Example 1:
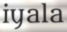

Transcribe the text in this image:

iyala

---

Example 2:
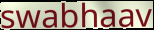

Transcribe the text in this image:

swabhaav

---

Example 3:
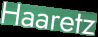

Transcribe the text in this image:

Haaretz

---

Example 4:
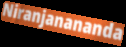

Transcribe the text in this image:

Niranjanananda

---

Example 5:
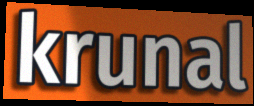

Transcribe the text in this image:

krunal